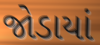
જોડાયાં